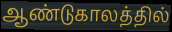
ஆண்டுகாலத்தில்